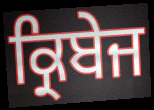
ਕ੍ਰਿਬੇਜ